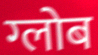
ग्‍लोब